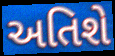
અતિશે